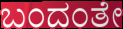
ಬಂದಂತೇ